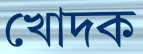
খোদক